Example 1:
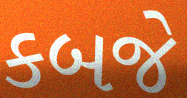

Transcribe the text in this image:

કબજે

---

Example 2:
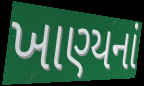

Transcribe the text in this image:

ખાણ્યનાં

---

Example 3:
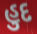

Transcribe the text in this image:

હુદ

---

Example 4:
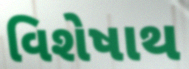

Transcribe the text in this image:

વિશેષાથ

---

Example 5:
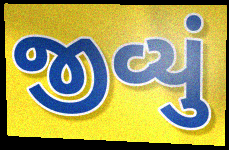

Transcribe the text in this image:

જીવ્યું